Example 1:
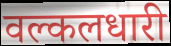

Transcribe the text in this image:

वल्कलधारी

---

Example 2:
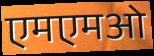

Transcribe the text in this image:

एमएमओ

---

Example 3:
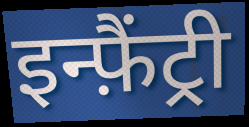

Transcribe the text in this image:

इन्फ़ैंट्री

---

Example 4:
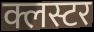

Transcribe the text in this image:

क्लस्टर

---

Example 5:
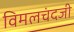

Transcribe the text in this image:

विमलचंदजी